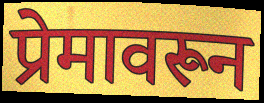
प्रेमावरून